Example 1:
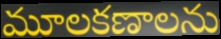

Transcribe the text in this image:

మూలకణాలను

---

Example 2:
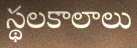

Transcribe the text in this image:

స్థలకాలాలు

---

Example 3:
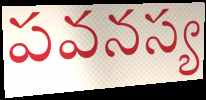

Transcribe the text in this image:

పవనస్య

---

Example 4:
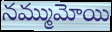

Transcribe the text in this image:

నమ్ముమోయి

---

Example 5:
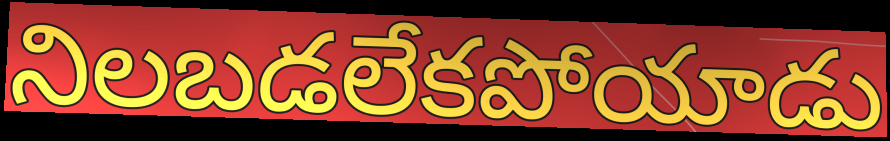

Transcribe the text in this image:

నిలబడలేకపోయాడు